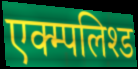
एक्म्पलिश्ड